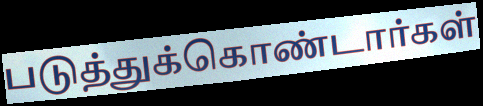
படுத்துக்கொண்டார்கள்